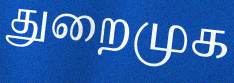
துறைமுக